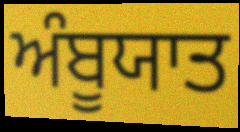
ਅੰਬੂਯਾਤ